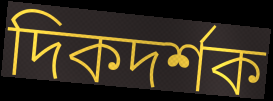
দিকদর্শক